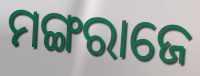
ମଙ୍ଗରାଜେ